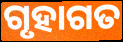
ଗୃହାଗତ